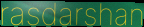
rasdarshan